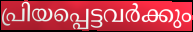
പ്രിയപ്പെട്ടവർക്കും